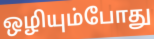
ஒழியும்போது